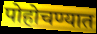
पोहोचण्यात